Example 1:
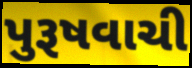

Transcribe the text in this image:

પુરૂષવાચી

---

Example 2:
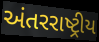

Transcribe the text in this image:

અંતરરાષ્ટ્રીય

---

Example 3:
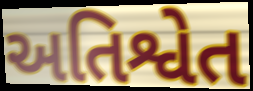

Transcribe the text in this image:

અતિશ્વેત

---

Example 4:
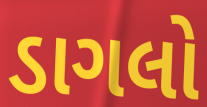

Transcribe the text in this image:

ડાગલો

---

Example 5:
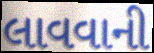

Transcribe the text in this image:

લાવવાની